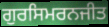
ਗੁਰਸਿਮਰਨਜੀਤ